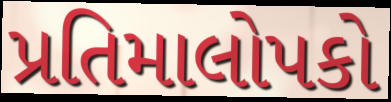
પ્રતિમાલોપકો